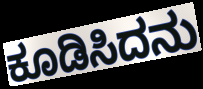
ಕೂಡಿಸಿದನು